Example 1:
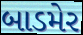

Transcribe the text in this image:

બાડમેર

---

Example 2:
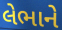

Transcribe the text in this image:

લેભાને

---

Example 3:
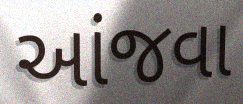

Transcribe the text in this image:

આંજવા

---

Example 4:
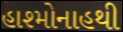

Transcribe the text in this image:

હાશ્મોનાહથી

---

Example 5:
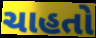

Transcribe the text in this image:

ચાહતો